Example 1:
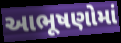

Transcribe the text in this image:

આભૂષણોમાં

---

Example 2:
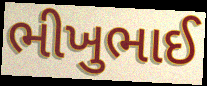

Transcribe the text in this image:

ભીખુભાઈ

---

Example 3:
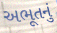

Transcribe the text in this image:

અભૂતનું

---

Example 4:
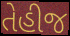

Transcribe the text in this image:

તેહીજ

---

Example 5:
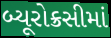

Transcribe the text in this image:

બ્યૂરોક્રસીમાં